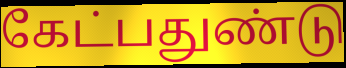
கேட்பதுண்டு